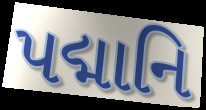
પદ્માનિ